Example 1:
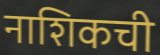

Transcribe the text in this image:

नाशिकची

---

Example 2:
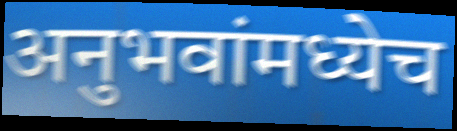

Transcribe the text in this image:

अनुभवांमध्येच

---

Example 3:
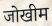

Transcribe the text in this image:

जोखीम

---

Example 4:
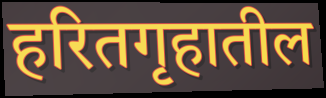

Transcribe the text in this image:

हरितगृहातील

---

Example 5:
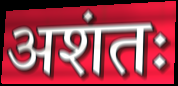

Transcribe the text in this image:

अशंतः